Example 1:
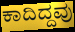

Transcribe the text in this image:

ಕಾದಿದ್ದವು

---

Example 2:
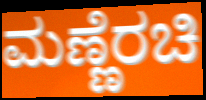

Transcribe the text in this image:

ಮಣ್ಣೆರಚಿ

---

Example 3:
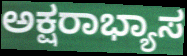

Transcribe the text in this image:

ಅಕ್ಷರಾಭ್ಯಾಸ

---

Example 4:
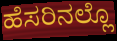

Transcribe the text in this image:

ಹೆಸರಿನಲ್ಲೊ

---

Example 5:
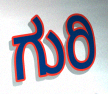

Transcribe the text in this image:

ಗುರಿ